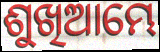
ଶୁଖିଆମ୍ଭେ